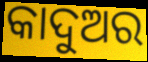
କାଦୁଅର